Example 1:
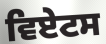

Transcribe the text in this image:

ਵਿਏਟਸ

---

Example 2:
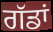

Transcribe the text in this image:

ਗੱਡਾਂ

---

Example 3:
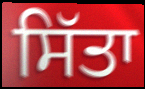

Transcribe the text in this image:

ਸਿੱਤਾ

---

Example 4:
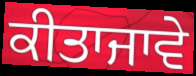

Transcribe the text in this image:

ਕੀਤਾਜਾਵੇ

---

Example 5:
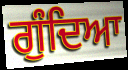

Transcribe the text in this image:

ਗੁੰਦਿਆ